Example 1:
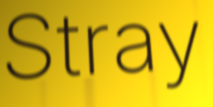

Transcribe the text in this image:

Stray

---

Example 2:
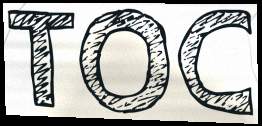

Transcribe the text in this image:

TOC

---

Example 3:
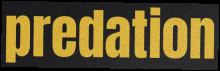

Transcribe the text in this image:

predation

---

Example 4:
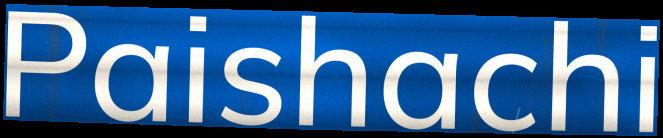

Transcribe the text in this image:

Paishachi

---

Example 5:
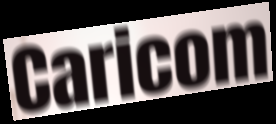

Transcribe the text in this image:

Caricom